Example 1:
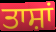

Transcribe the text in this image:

ਤਾਸ਼ਾਂ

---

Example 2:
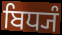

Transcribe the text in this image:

ਬਿਧ੍ਯੰ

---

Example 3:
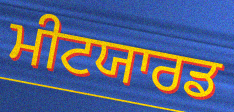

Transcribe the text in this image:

ਮੀਟਯਾਰਡ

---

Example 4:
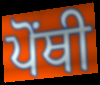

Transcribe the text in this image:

ਪੋਂਥੀ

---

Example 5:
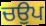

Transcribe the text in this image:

ਚਉਪ